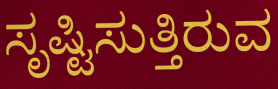
ಸೃಷ್ಟಿಸುತ್ತಿರುವ